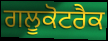
ਗਲੂਕੋਟਰੈਕ